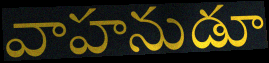
వాహనుడూ